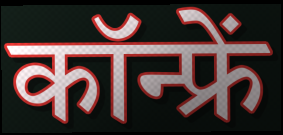
कॉन्फ्रें